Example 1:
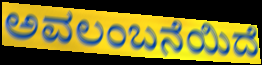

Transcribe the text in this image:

ಅವಲಂಬನೆಯಿದೆ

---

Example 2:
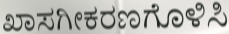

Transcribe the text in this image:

ಖಾಸಗೀಕರಣಗೊಳಿಸಿ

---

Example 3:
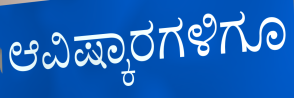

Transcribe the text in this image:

ಆವಿಷ್ಕಾರಗಳಿಗೂ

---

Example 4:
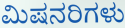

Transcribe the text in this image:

ಮಿಷನರಿಗಳು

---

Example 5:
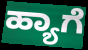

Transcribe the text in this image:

ಹ್ಯಾಗೆ